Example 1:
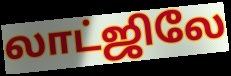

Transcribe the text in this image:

லாட்ஜிலே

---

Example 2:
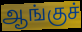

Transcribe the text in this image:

ஆங்குச்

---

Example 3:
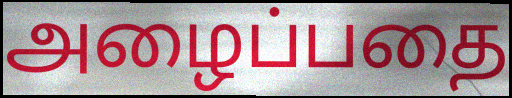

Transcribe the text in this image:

அழைப்பதை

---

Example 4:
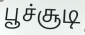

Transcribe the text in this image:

பூச்சூடி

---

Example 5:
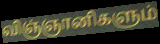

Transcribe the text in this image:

விஞ்ஞானிகளும்